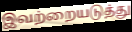
இவற்றையடுத்து